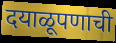
दयाळूपणाची